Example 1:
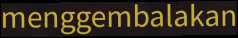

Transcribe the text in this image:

menggembalakan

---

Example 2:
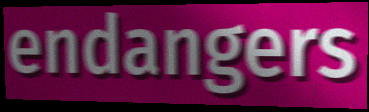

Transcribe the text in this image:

endangers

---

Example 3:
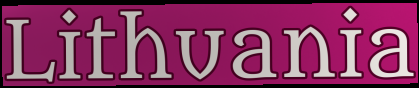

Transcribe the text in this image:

Lithuania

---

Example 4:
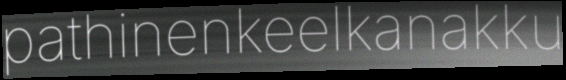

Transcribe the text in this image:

pathinenkeelkanakku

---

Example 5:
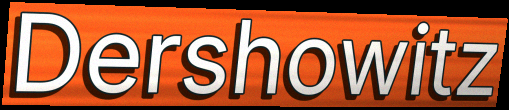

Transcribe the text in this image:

Dershowitz